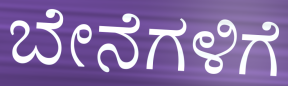
ಬೇನೆಗಳಿಗೆ